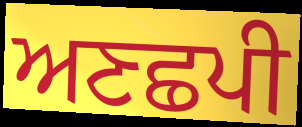
ਅਣਛਪੀ